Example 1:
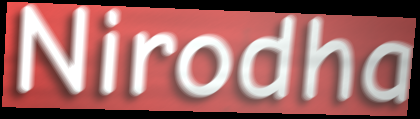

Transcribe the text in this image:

Nirodha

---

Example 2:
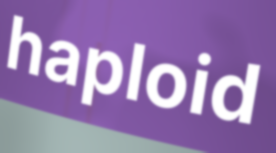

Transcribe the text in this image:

haploid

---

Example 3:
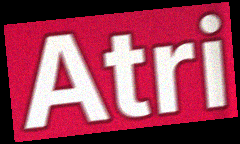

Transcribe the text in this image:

Atri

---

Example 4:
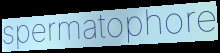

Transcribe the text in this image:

spermatophore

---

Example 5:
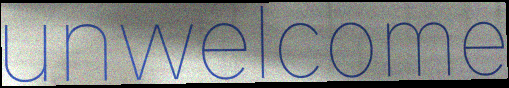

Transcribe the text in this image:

unwelcome